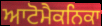
ਆਟੋਮੈਕਨਿਕਾ